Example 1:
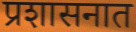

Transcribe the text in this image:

प्रशासनात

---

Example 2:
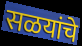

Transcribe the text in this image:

सळयांचे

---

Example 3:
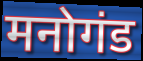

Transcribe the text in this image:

मनोगंड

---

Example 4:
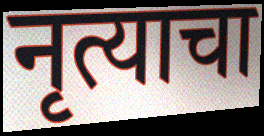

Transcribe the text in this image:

नृत्याचा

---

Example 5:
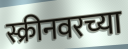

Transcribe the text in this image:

स्क्रीनवरच्या